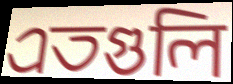
এতগুলি